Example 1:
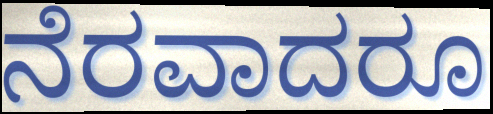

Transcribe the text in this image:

ನೆರವಾದರೂ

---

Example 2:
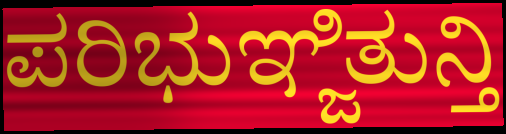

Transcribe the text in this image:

ಪರಿಭುಞ್ಜಿತುನ್ತಿ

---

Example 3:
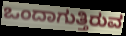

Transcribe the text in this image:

ಒಂದಾಗುತ್ತಿರುವ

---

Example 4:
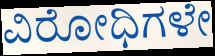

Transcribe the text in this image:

ವಿರೋಧಿಗಳೇ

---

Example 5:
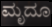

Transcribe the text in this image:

ಮೃದೂ